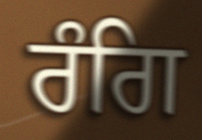
ਰੰਗਿ